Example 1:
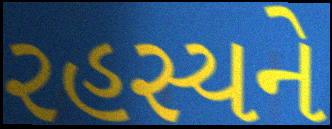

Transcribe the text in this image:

રહસ્યને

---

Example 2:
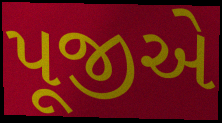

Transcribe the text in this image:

પૂજીએ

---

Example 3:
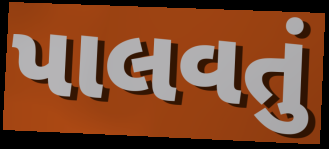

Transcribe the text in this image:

પાલવતું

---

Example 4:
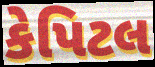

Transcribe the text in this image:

કેપિટલ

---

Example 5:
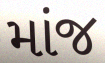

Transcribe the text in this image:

માંજ